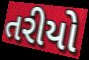
તરીયો